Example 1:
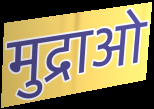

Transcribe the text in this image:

मुद्राओ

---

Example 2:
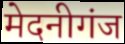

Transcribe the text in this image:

मेदनीगंज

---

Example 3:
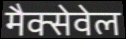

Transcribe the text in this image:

मैक्सेवेल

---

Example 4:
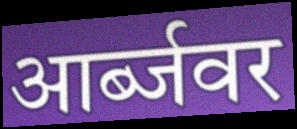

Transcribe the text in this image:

आर्ब्जवर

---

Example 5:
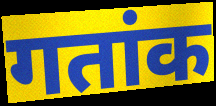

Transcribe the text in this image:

गतांक